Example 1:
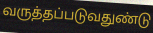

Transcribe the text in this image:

வருத்தப்படுவதுண்டு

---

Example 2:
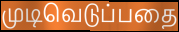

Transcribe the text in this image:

முடிவெடுப்பதை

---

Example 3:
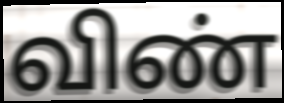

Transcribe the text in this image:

விண்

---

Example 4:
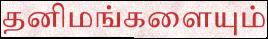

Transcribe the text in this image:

தனிமங்களையும்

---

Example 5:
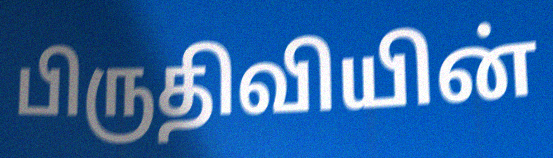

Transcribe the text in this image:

பிருதிவியின்